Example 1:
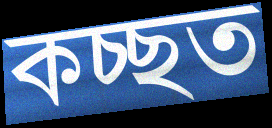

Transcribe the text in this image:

কচ্ছত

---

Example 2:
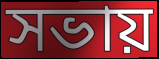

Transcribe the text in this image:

সভায়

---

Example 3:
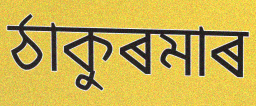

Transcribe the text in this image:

ঠাকুৰমাৰ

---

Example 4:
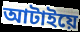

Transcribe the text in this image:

আটাইয়ে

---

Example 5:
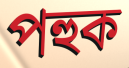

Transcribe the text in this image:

পহুক